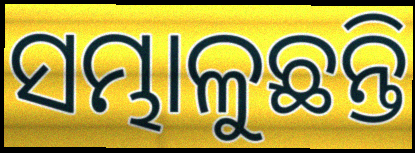
ସମ୍ଭାଳୁଛନ୍ତି